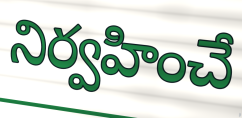
నిర్వహించే